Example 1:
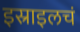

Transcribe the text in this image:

इस्राइलचं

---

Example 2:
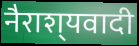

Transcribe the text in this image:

नैराश्यवादी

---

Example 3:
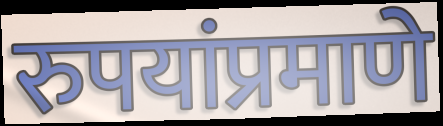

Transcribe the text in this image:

रुपयांप्रमाणे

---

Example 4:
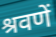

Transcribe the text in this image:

श्रवणें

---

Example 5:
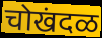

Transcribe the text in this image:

चोखंदळ